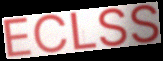
ECLSS